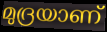
മുദ്രയാണ്